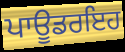
ਪਾਊਡਰਇਹ